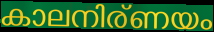
കാലനിര്ണയം